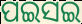
ପଇସଇ